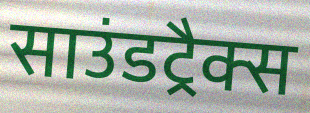
साउंडट्रैक्स